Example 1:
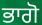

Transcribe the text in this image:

ਭਾਗੋ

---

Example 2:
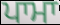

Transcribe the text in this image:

ਪਾਮਾ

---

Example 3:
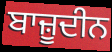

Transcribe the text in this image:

ਬਾਜ਼ੂਦੀਨ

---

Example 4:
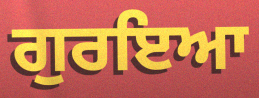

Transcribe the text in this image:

ਗੁਰਇਆ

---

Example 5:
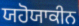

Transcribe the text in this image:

ਯਹੋਯਾਕੀਨ